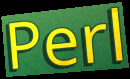
Perl